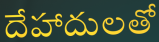
దేహాదులతో